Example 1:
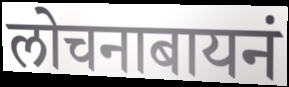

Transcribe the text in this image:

लोचनाबायनं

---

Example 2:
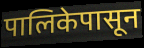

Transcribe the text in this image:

पालिकेपासून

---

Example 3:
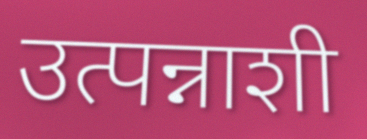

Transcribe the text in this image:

उत्पन्नाशी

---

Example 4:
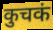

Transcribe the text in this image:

कुचकं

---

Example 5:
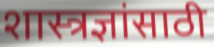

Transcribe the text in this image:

शास्त्रज्ञांसाठी